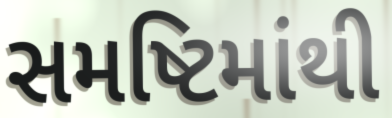
સમષ્ટિમાંથી